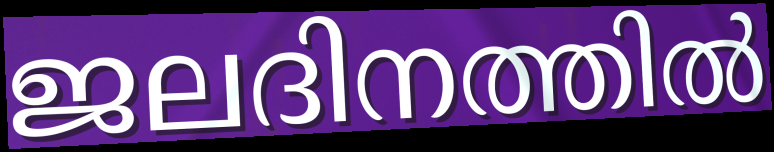
ജലദിനത്തിൽ